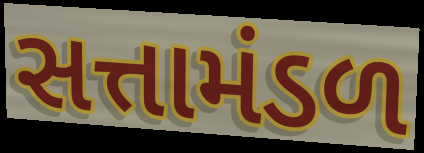
સત્તામંડળ